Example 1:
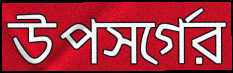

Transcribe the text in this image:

উপসর্গের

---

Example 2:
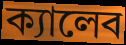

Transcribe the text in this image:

ক্যালেব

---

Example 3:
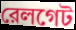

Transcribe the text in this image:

রেলগেট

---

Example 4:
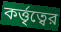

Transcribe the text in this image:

কর্ত্তৃত্বের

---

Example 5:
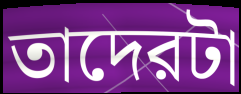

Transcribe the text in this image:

তাদেরটা